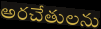
అరచేతులను